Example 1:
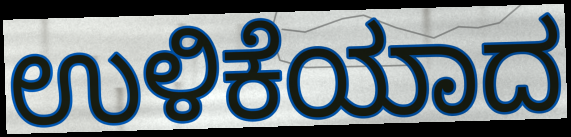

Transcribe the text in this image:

ಉಳಿಕೆಯಾದ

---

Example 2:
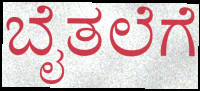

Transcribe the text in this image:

ಬೈತಲೆಗೆ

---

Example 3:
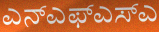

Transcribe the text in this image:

ಎನ್ಎಫ್ಎಸ್ಎ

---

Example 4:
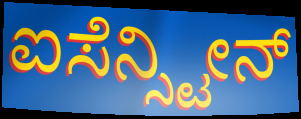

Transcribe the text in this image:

ಐಸೆನ್ಸ್ಟೀನ್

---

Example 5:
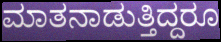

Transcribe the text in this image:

ಮಾತನಾಡುತ್ತಿದ್ದರೂ